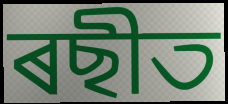
ৰছীত